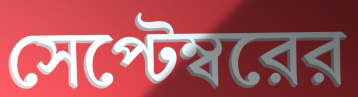
সেপ্টেম্বরের